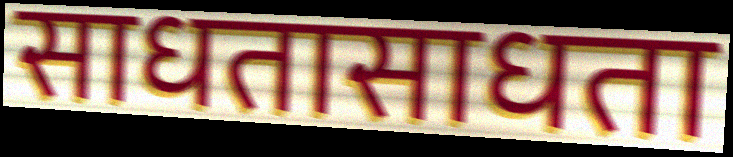
साधतासाधता